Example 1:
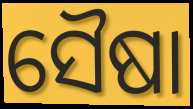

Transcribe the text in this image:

ସୈଷା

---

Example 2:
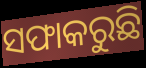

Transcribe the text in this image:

ସଫାକରୁଛି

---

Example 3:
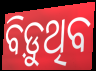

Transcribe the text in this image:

ବିଡ଼ୁଥିବ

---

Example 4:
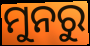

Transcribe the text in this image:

ମୁନରୁ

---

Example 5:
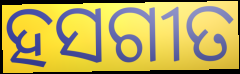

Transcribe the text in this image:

ହସଗୀତ